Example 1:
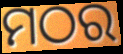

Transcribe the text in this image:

ମଠର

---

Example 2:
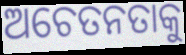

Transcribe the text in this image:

ଅଚେତନତାକୁ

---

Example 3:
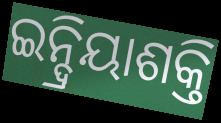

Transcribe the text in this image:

ଇନ୍ଦ୍ରିୟାଶକ୍ତି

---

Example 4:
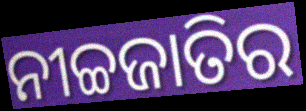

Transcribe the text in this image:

ନୀଚ୍ଚଜାତିର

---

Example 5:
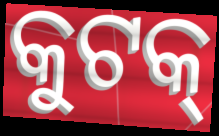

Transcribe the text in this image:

କୁଟକ୍